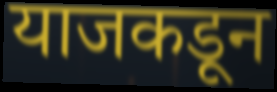
याजकडून